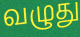
வழுது